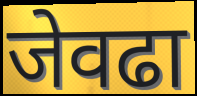
जेवढा